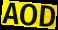
AOD